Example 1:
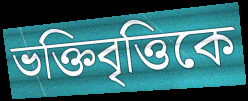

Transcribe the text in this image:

ভক্তিবৃত্তিকে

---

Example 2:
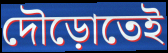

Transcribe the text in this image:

দৌড়োতেই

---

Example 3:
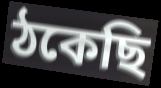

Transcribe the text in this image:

ঠকেছি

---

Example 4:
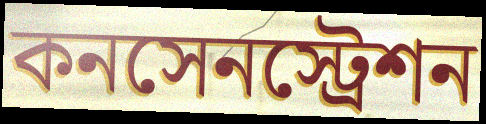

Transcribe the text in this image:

কনসেনস্ট্রেশন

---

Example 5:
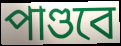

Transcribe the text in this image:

পাণ্ডবে